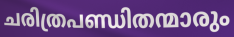
ചരിത്രപണ്ഡിതന്മാരും